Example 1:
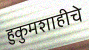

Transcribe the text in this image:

हुकुमशाहीचे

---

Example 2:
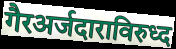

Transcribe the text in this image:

गैरअर्जदाराविरुध्द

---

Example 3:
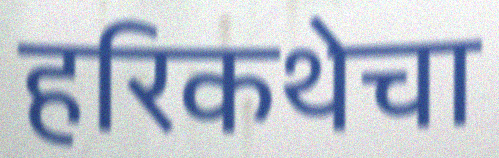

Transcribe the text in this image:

हरिकथेचा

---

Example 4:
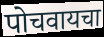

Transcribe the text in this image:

पोचवायचा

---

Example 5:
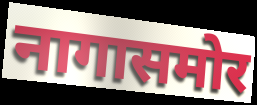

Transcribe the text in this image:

नागासमोर